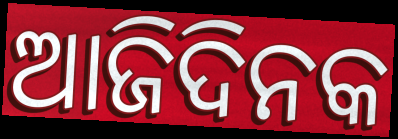
ଆଜିଦିନକ